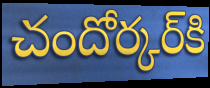
చందోర్కర్‌కి